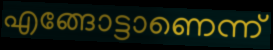
എങ്ങോട്ടാണെന്ന്